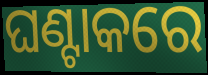
ଘଣ୍ଟାକରେ